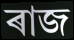
ৰাজ